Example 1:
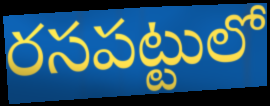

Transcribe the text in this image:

రసపట్టులో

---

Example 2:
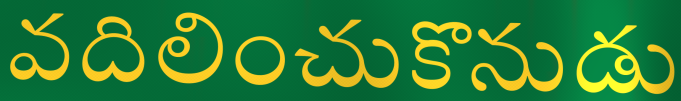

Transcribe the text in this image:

వదిలించుకొనుడు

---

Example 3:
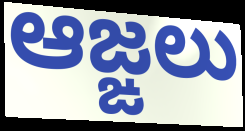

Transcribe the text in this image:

ఆజ్ఙలు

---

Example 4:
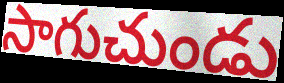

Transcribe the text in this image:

సాగుచుండు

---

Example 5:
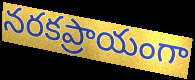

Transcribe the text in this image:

నరకప్రాయంగా